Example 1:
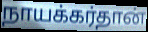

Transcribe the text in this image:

நாயக்கர்தான்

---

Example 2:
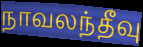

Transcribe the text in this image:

நாவலந்தீவு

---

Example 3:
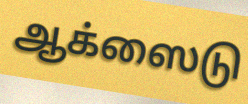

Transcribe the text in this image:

ஆக்ஸைடு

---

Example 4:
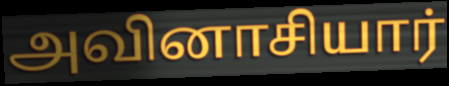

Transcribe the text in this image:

அவினாசியார்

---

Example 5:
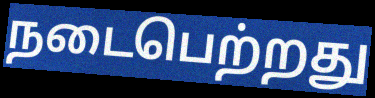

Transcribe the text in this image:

நடைபெற்றது